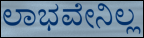
ಲಾಭವೇನಿಲ್ಲ